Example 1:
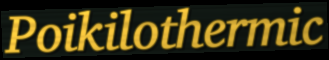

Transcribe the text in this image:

Poikilothermic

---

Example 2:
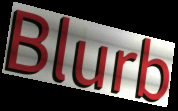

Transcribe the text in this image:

Blurb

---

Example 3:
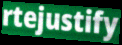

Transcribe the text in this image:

rtejustify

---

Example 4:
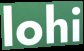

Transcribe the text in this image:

lohi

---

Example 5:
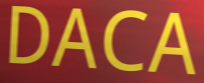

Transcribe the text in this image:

DACA